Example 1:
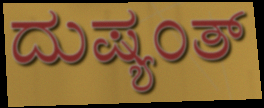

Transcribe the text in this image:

ದುಷ್ಯಂತ್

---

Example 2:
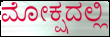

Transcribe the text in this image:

ಮೋಕ್ಷದಲ್ಲಿ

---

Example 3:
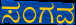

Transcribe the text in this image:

ಸಂಗವ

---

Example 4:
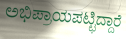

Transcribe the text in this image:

ಅಭಿಪ್ರಾಯಪಟ್ಟಿದ್ದಾರೆ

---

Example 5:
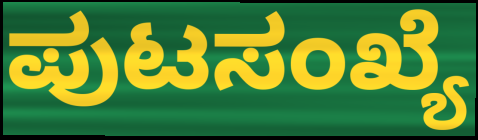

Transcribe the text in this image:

ಪುಟಸಂಖ್ಯೆ